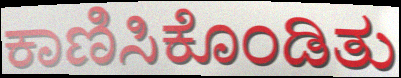
ಕಾಣಿಸಿಕೊಂಡಿತು